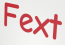
Fext